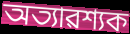
অত্যাৱশ্যক